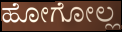
ಹೋಗೋಲ್ಲ